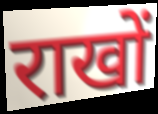
राखों